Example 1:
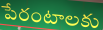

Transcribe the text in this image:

పేరంటాలకు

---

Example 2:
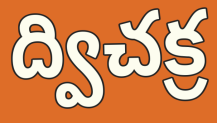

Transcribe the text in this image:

ద్విచక్ర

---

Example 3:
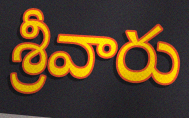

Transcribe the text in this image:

శ్రీవారు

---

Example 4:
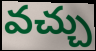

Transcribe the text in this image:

వచ్చు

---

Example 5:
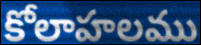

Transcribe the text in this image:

కోలాహలము